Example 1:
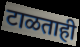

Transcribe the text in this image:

टाळताही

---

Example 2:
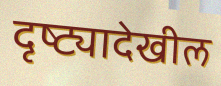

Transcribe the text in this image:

दृष्ट्यादेखील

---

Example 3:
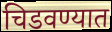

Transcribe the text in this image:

चिडवण्यात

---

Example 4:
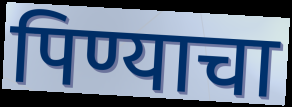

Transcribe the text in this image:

पिण्याचा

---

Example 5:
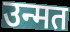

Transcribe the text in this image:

उन्मत